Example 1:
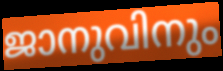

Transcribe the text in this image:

ജാനുവിനും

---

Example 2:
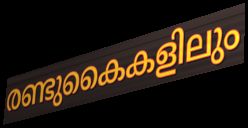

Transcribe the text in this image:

രണ്ടുകൈകളിലും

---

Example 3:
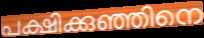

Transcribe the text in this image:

പക്ഷിക്കുഞ്ഞിനെ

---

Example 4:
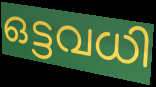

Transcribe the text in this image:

ഒട്ടവധി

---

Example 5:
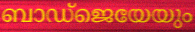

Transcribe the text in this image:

ബാഡ്ജെയേയും